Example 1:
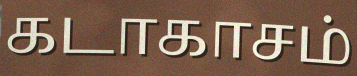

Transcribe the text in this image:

கடாகாசம்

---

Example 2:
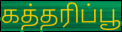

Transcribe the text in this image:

கத்தரிப்பூ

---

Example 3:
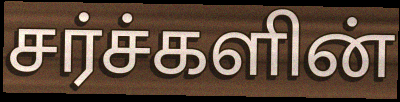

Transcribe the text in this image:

சர்ச்களின்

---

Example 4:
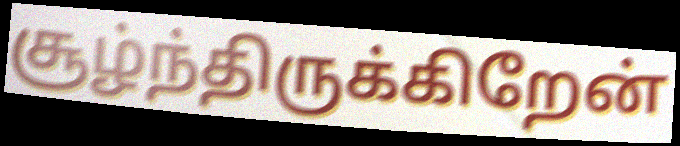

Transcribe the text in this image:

சூழ்ந்திருக்கிறேன்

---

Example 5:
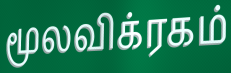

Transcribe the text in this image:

மூலவிக்ரகம்